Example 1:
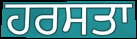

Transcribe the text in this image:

ਹਰਸਤਾ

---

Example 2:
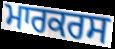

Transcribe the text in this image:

ਮਾਰਕਰਸ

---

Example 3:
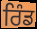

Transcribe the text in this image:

ਰਿੰਡ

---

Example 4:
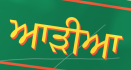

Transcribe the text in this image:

ਆੜੀਆ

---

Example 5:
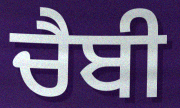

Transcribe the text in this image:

ਚੈਬੀ